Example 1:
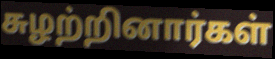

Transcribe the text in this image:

சுழற்றினார்கள்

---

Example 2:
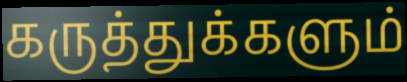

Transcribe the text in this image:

கருத்துக்களும்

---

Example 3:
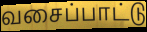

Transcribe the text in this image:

வசைப்பாட்டு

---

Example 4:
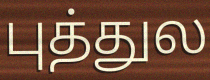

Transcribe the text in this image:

புத்துல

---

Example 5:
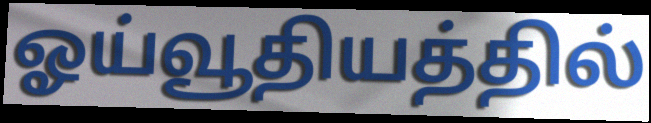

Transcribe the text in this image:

ஓய்வூதியத்தில்